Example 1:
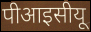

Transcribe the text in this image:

पीआइसीयू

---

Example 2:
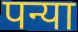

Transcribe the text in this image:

पन्या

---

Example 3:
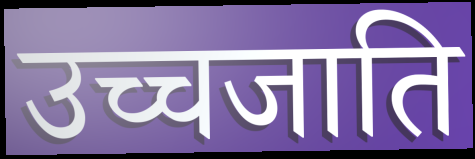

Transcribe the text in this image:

उच्चजाति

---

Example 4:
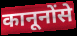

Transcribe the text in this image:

कानूनोंसे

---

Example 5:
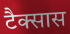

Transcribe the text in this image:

टैक्सास